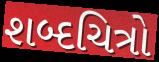
શબ્દચિત્રો